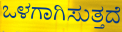
ಒಳಗಾಗಿಸುತ್ತದೆ